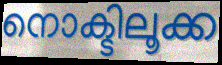
നൊക്ടിലൂക്ക